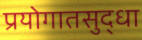
प्रयोगातसुद्धा